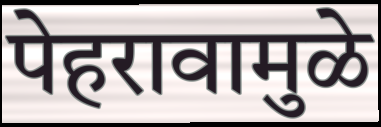
पेहरावामुळे